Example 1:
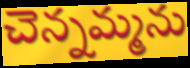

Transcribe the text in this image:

చెన్నమ్మను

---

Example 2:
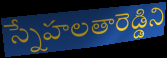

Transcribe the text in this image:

స్నేహలతారెడ్డిని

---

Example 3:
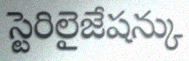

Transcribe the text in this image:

స్టెరిలైజేషన్కు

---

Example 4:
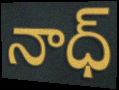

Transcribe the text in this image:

నాధ్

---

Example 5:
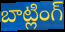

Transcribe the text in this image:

బాట్లింగ్